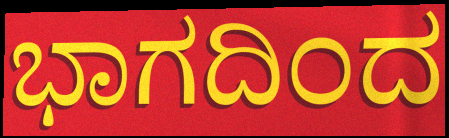
ಭಾಗದಿಂದ